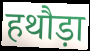
हथौड़ा